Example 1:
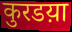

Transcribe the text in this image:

कुरडय़ा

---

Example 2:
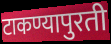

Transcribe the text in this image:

टाकण्यापुरती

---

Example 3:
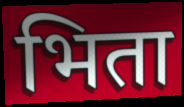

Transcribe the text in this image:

भिता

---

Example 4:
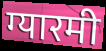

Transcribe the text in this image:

ग्यारमी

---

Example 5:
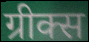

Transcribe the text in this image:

ग्रीक्स